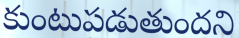
కుంటుపడుతుందని